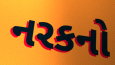
નરકનો